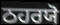
ਠਹਰਯੋ